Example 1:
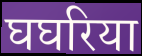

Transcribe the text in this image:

घघरिया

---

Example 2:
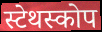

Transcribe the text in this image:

स्टेथस्कोप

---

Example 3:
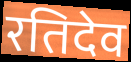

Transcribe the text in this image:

रतिदेव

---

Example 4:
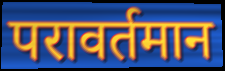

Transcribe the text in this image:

परावर्तमान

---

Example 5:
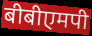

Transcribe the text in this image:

बीबीएमपी